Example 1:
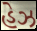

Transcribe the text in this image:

હેઝ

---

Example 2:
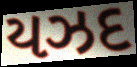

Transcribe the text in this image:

યઝદ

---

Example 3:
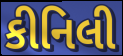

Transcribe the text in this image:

કીનિલી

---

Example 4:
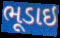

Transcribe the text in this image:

ભૂડાઇ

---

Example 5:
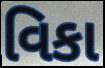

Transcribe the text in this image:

વિકા